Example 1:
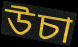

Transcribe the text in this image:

উচা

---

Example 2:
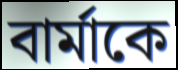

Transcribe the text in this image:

বার্মাকে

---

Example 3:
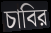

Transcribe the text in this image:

চাবির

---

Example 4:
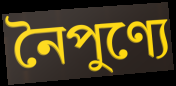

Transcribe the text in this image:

নৈপুণ্যে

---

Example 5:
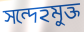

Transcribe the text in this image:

সন্দেহমুক্ত